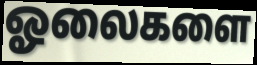
ஓலைகளை